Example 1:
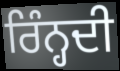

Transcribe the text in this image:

ਰਿੰਨ੍ਹਦੀ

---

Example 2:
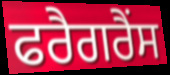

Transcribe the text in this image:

ਫਰੈਗਰੈਂਸ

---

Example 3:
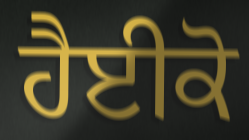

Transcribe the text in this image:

ਹੈਈਕੋ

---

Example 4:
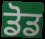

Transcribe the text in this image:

ਡੋਡ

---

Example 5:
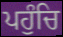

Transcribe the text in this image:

ਪਹੁੰਚਿ